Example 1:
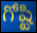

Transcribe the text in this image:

గోష్టి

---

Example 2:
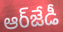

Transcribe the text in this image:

ఆర్‌జేడీ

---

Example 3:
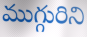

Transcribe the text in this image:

ముగ్గురిని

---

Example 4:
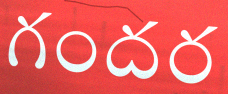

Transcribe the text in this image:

గందర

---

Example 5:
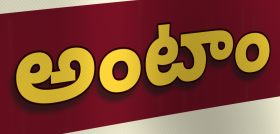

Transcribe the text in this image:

అంటాం